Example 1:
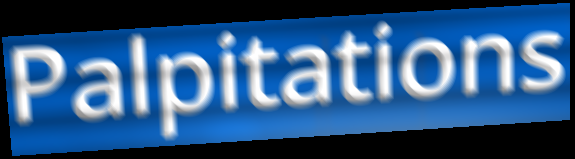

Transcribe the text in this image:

Palpitations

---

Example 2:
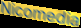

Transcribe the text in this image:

Nicomedia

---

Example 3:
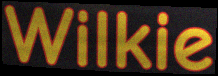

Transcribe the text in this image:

Wilkie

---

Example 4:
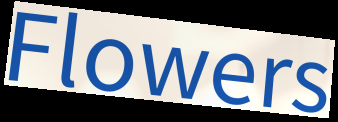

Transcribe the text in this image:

Flowers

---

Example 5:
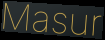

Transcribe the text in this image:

Masur